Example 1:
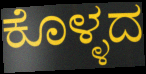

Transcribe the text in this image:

ಕೊಳ್ಳದ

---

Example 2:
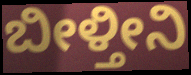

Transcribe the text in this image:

ಬೀಳ್ತೀನಿ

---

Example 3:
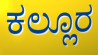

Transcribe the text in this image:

ಕಲ್ಲೂರ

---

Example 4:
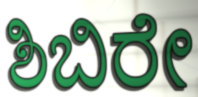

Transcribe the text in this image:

ಶಿಬಿರೇ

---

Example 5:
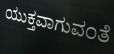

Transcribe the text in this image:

ಯುಕ್ತವಾಗುವಂತೆ